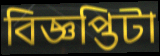
বিজ্ঞপ্তিটা